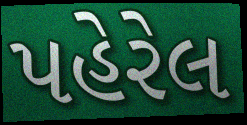
પહેરેલ